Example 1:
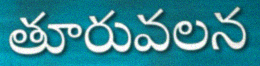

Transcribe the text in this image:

తూరువలన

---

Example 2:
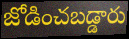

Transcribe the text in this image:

జోడించబడ్డారు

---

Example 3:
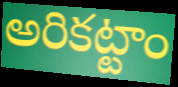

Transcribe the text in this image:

అరికట్టాం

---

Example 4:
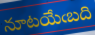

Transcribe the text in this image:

నూటయేఁబది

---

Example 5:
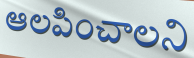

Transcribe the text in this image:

ఆలపించాలని